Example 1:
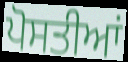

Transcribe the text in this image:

ਪੋਸਤੀਆਂ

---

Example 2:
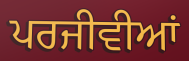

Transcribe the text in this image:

ਪਰਜੀਵੀਆਂ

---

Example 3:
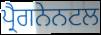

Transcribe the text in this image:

ਪ੍ਰੈਗਨੇਨਟਲ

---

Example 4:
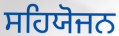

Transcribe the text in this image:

ਸਹਿਯੋਜਨ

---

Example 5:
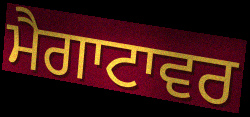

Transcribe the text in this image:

ਮੈਗਾਟਾਵਰ